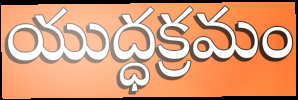
యుద్ధక్రమం